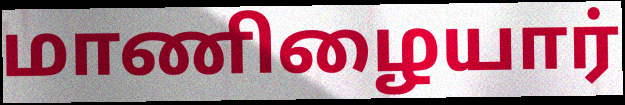
மாணிழையார்